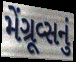
મેંગ્રૂવ્સનું